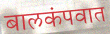
बालकंपवात